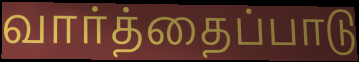
வார்த்தைப்பாடு